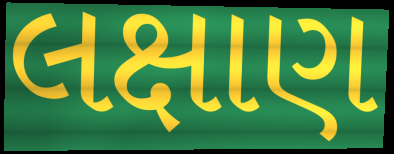
લક્ષાણ